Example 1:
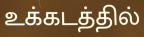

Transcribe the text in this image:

உக்கடத்தில்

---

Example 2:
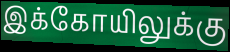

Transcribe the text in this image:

இக்கோயிலுக்கு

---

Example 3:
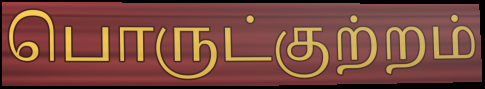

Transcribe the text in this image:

பொருட்குற்றம்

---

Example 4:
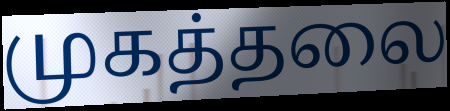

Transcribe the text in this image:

முகத்தலை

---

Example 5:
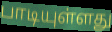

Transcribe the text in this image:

பாடியுள்ளது